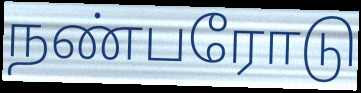
நண்பரோடு